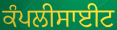
ਕੰਪਲੀਸਾਈਟ